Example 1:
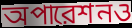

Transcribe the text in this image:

অপারেশনও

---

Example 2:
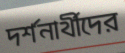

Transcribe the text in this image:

দর্শনার্থীদের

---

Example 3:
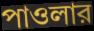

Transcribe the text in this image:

পাওলার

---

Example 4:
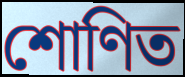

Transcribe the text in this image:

শোণিত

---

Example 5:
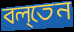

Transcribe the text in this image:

বল্‌তেন